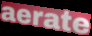
aerate